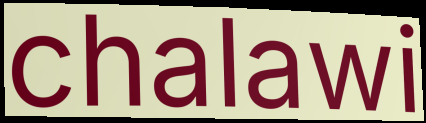
chalawi